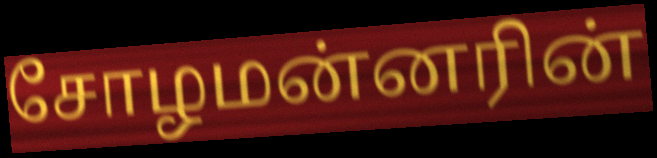
சோழமன்னரின்